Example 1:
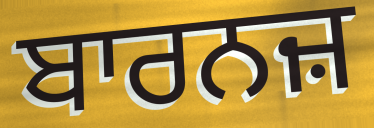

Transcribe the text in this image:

ਬਾਰਨਜ਼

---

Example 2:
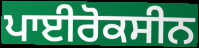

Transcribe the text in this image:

ਪਾਈਰੋਕਸੀਨ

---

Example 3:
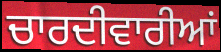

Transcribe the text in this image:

ਚਾਰਦੀਵਾਰੀਆਂ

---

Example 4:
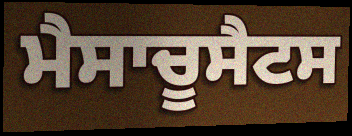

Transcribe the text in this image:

ਮੈਸਾਚੂਸੈਟਸ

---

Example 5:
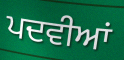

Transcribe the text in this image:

ਪਦਵੀਆਂ